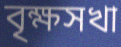
বৃক্ষসখা